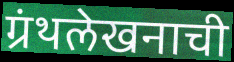
ग्रंथलेखनाची